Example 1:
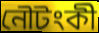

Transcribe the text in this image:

নৌটংকী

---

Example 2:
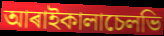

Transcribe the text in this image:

আৰাইকালাচেলভি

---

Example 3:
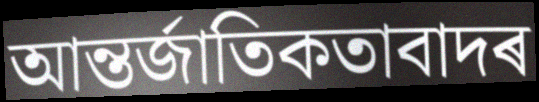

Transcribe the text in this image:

আন্তৰ্জাতিকতাবাদৰ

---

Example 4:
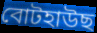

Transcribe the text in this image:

বোটহাউছ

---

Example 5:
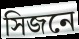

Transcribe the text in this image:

সিজনে